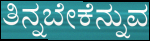
ತಿನ್ನಬೇಕೆನ್ನುವ